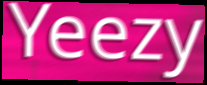
Yeezy